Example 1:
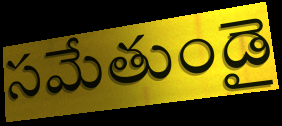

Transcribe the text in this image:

సమేతుండై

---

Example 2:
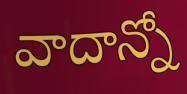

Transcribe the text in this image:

వాదాన్నో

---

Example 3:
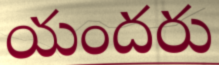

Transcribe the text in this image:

యందరు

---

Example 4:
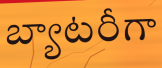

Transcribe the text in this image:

బ్యాటరీగా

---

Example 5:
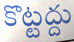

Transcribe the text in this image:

కొట్టద్దు